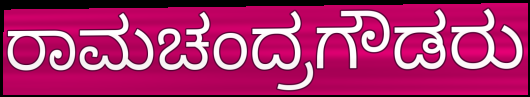
ರಾಮಚಂದ್ರಗೌಡರು